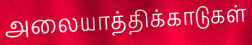
அலையாத்திக்காடுகள்